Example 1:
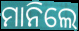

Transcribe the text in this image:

ମାନିଲେ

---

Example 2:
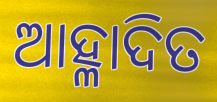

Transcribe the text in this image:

ଆହ୍ଳାଦିତ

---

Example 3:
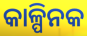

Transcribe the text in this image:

କାଳ୍ପିନକ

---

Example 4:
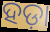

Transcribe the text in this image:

ହଡ଼ା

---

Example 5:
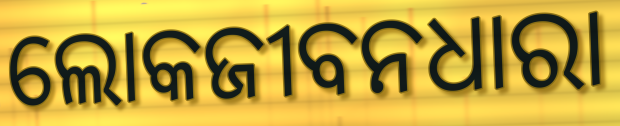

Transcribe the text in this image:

ଲୋକଜୀବନଧାରା